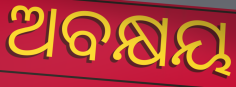
ଅବକ୍ଷୟ